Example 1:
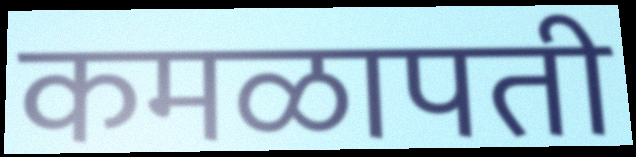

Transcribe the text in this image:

कमळापती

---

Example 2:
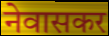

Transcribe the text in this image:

नेवासकर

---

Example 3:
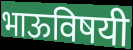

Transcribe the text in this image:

भाऊविषयी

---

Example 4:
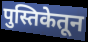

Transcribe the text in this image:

पुस्तिकेतून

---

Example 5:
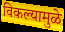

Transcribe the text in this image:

विकल्यामुळे